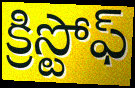
క్రిస్టోఫ్